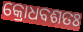
କ୍ରୋଧବଶତଃ